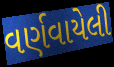
વર્ણવાયેલી